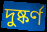
দুষ্কর্ণ